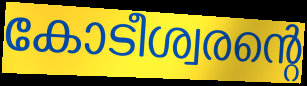
കോടീശ്വരന്റെ